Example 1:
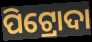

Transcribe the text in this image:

ପିଟ୍ରୋଦା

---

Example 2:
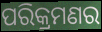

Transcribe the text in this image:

ପରିକ୍ରମଣର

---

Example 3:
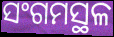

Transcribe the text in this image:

ସଂଗମସ୍ଥଳ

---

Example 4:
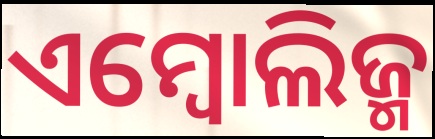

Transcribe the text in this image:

ଏମ୍ବୋଲିଜ୍ମ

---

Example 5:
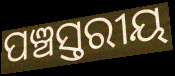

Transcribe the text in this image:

ପଞ୍ଚସ୍ତରୀୟ